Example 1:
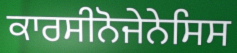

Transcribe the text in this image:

ਕਾਰਸੀਨੋਜੇਨੇਸਿਸ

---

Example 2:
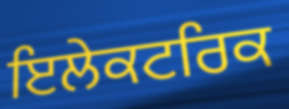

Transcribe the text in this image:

ਇਲੇਕਟਰਿਕ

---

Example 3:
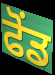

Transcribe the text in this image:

ਫੋਂਡ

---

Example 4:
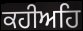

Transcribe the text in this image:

ਕਹੀਅਹਿ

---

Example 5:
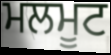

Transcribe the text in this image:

ਮਲਮੂਟ